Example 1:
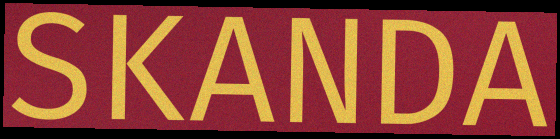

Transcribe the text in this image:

SKANDA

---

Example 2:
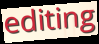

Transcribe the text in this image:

editing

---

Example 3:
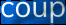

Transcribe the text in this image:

coup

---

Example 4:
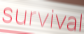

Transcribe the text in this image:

survival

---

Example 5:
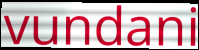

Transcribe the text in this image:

vundani